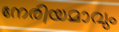
നേരിയമാവും